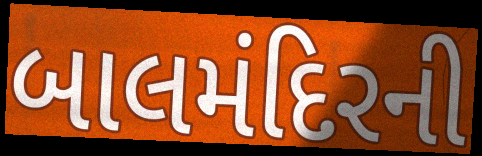
બાલમંદિરની